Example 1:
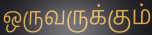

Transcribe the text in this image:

ஒருவருக்கும்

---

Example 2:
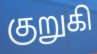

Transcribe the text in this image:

குறுகி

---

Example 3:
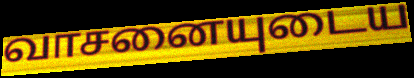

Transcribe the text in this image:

வாசனையுடைய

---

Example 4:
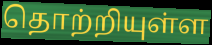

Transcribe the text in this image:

தொற்றியுள்ள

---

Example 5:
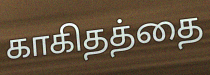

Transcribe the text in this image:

காகிதத்தை